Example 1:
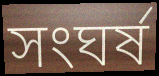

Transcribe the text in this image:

সংঘৰ্ষ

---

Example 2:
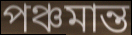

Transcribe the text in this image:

পঞ্চমান্ত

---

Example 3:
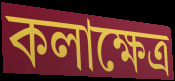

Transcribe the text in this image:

কলাক্ষেত্ৰ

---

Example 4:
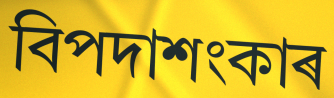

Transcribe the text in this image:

বিপদাশংকাৰ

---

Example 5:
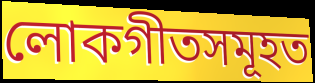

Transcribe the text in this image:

লোকগীতসমূহত